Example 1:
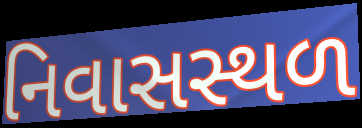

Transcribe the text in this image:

નિવાસસ્થળ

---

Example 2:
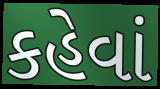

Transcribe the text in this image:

કહેવાં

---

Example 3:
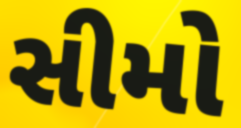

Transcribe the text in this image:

સીમો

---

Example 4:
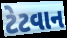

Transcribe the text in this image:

ટેટવાન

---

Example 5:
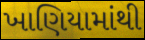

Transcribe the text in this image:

ખાણિયામાંથી